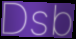
Dsb